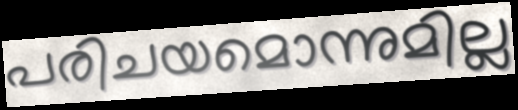
പരിചയമൊന്നുമില്ല